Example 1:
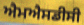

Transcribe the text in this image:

ਐਮਐਸਡੀਸੀ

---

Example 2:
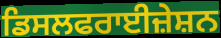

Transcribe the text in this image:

ਡਿਸਲਫਰਾਈਜ਼ੇਸ਼ਨ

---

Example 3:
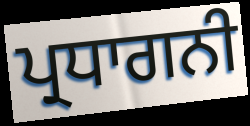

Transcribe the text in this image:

ਪ੍ਰਧਾਗਨੀ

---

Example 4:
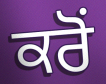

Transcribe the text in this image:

ਕਰੋਂ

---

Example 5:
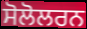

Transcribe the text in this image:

ਸੋਲੋਲਰਨ